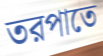
তরপাতে